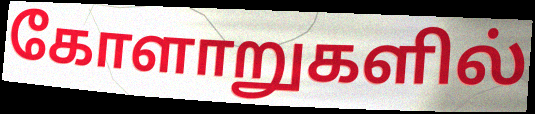
கோளாறுகளில்